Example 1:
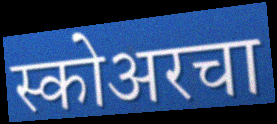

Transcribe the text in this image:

स्कोअरचा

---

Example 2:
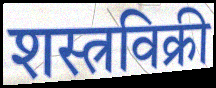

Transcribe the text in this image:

शस्त्रविक्री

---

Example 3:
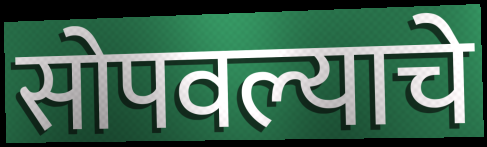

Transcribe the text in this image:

सोपवल्याचे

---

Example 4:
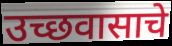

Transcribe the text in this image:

उच्छवासाचे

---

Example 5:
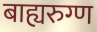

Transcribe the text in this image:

बाह्यरुग्ण